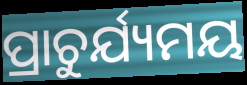
ପ୍ରାଚୁର୍ଯ୍ୟମୟ